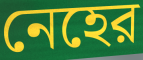
নেহের